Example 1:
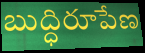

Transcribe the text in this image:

బుద్ధిరూపేణ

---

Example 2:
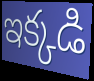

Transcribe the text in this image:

ఇక్కడి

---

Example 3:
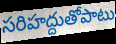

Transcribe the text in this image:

సరిహద్దుతోపాటు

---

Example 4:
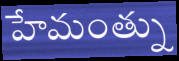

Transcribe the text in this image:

హేమంత్ను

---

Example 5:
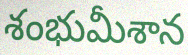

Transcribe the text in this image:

శంభుమీశాన